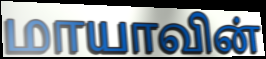
மாயாவின்